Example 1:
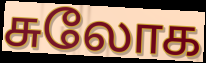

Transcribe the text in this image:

சுலோக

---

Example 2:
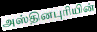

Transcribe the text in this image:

அஸ்தினபுரியின்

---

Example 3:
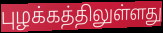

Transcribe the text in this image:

புழக்கத்திலுள்ளது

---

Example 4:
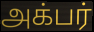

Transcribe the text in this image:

அக்பர்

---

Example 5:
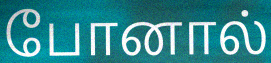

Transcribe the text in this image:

போனால்